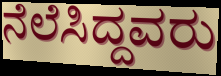
ನೆಲೆಸಿದ್ದವರು